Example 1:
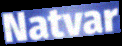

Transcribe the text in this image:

Natvar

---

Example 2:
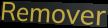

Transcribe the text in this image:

Remover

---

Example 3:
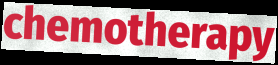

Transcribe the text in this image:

chemotherapy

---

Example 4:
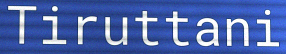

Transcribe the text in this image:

Tiruttani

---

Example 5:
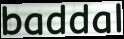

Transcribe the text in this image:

baddal